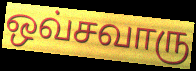
ஒவ்சவாரு